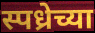
स्पध्रेच्या